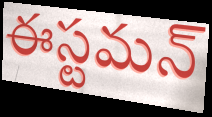
ఈస్టమన్